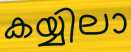
കയ്യിലാ